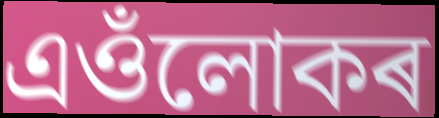
এওঁলোকৰ